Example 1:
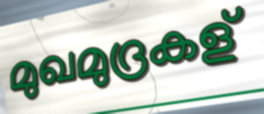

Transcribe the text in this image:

മുഖമുദ്രകള്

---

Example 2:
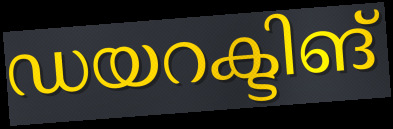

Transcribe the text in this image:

ഡയറക്ടിങ്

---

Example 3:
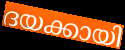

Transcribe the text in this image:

ദയക്കായി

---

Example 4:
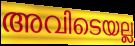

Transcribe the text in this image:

അവിടെയല്ല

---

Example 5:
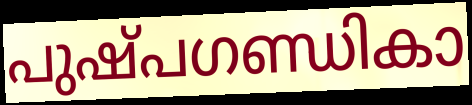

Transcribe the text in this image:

പുഷ്പഗണ്ഡികാ